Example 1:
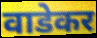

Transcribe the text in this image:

वाडेकर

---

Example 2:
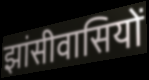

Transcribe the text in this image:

झांसीवासियों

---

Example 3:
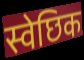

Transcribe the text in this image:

स्वेछिक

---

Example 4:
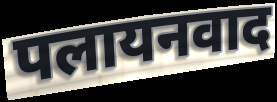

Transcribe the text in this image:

पलायनवाद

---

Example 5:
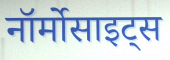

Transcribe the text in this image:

नॉर्मोसाइट्स